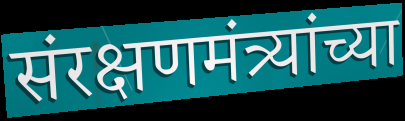
संरक्षणमंत्र्यांच्या